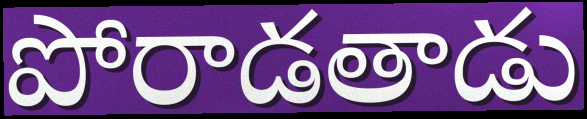
పోరాడతాడు